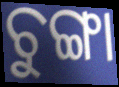
ଚୁଙ୍ଗା